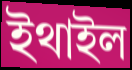
ইথাইল